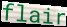
flair